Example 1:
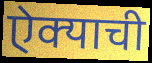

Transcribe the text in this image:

ऐक्याची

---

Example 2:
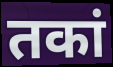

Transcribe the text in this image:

तकां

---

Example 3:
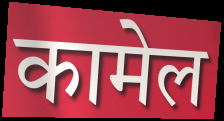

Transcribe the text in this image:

कामेल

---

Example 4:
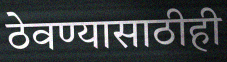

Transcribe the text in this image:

ठेवण्यासाठीही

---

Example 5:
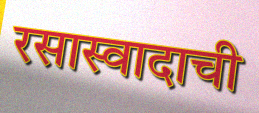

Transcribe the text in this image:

रसास्वादाची